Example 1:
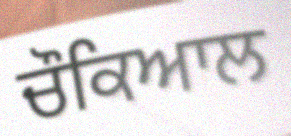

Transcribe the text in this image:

ਚੌਕਿਆਲ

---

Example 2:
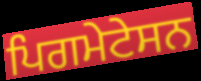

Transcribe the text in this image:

ਪਿਗਮੇਟੇਸਨ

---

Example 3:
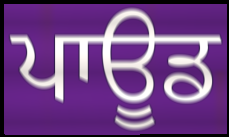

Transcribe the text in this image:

ਪਾਊਡ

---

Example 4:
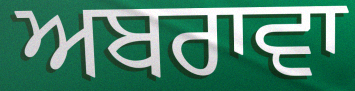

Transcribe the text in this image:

ਅਬਰਾਵਾ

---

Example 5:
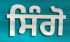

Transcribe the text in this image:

ਸਿੰਗੋ